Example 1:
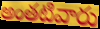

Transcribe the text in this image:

అంతటివారు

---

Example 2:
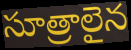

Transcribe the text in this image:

సూత్రాలైన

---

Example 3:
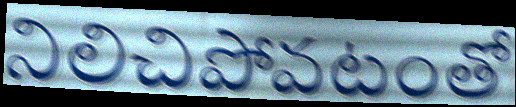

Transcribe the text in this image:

నిలిచిపోవటంతో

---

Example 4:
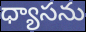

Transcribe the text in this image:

ధ్యాసను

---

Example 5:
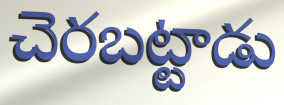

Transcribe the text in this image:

చెరబట్టాడు